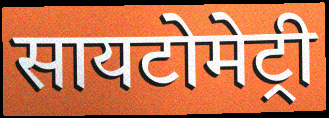
सायटोमेट्री